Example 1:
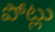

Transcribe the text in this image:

పోట్లు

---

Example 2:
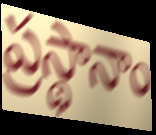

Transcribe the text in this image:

ప్రస్థానాం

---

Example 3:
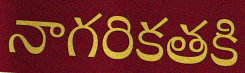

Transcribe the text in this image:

నాగరికతకి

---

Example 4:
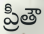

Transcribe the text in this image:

ప్రీతౌ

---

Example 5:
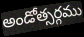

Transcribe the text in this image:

అండోత్సర్గము